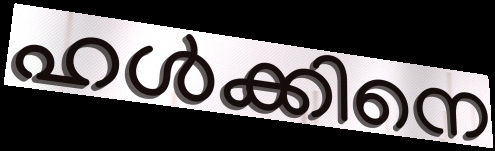
ഹൾക്കിനെ